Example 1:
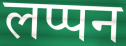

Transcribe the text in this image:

लप्पन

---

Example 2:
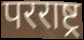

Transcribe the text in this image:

परराष्ट्र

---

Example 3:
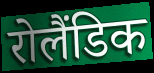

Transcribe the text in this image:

रोलैंडिक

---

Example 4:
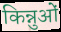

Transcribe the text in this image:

किन्नुओं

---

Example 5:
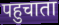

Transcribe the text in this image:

पहुचाता